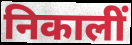
निकालीं